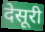
देसूरी